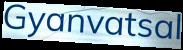
Gyanvatsal